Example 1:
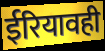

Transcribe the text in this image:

ईरियावही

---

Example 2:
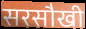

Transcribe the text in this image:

सरसौखी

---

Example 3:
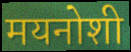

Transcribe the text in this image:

मयनोशी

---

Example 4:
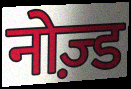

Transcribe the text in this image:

नोज़्ड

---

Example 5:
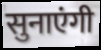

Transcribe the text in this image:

सुनाएंगी